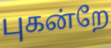
புகன்றே